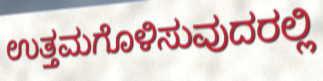
ಉತ್ತಮಗೊಳಿಸುವುದರಲ್ಲಿ